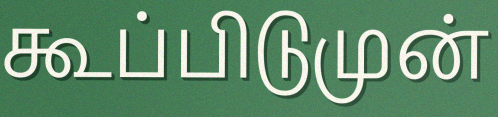
கூப்பிடுமுன்